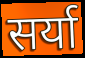
सर्या